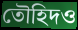
তৌহিদও